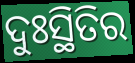
ଦୁଃସ୍ଥିତିର